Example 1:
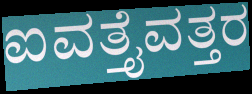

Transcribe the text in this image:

ಐವತ್ತೈವತ್ತರ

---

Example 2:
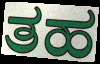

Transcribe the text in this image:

ತಹ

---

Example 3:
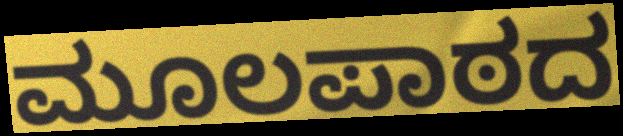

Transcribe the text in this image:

ಮೂಲಪಾಠದ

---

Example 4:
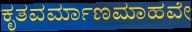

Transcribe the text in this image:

ಕೃತವರ್ಮಾಣಮಾಹವೇ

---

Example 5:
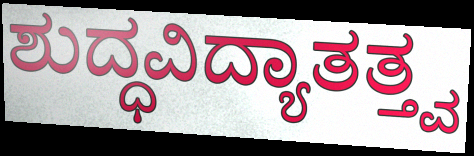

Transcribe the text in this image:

ಶುದ್ಧವಿದ್ಯಾತತ್ತ್ವ